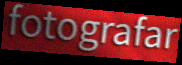
fotografar